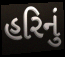
હરિનું